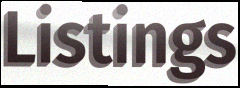
Listings